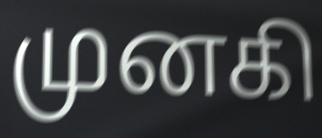
முனகி